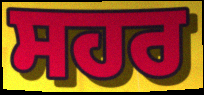
ਸਹਰ